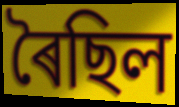
ৰৈছিল